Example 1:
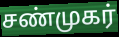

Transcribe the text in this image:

சண்முகர்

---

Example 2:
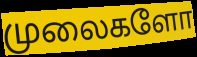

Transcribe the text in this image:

முலைகளோ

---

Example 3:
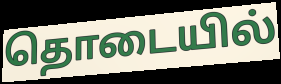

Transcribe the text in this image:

தொடையில்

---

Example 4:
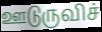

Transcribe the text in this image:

ஊடுருவிச்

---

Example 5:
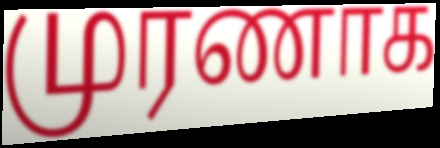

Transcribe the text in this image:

முரணாக